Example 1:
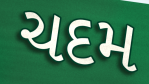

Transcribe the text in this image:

ચદમ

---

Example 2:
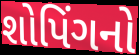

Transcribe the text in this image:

શોપિંગનો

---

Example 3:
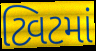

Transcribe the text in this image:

ટ્વિટમાં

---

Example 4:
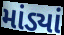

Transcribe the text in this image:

માંડ્યાં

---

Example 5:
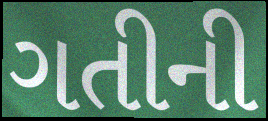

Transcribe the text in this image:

ગતીની